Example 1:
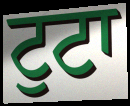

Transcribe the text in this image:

ਟੁਟਾ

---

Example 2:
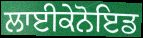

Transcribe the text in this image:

ਲਾਈਕੇਨੋਇਡ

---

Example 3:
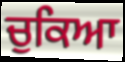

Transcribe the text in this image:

ਚੁਕਿਆ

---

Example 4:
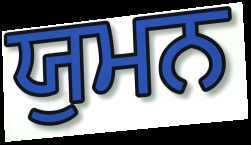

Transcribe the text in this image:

ਯੁਮਨ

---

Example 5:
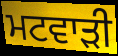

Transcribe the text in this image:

ਮਟਵਾੜੀ